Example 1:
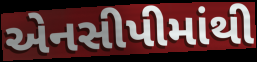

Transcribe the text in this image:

એનસીપીમાંથી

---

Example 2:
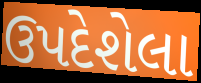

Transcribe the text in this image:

ઉપદેશેલા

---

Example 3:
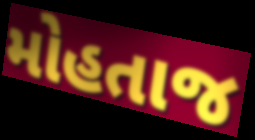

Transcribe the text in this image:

મોહતાજ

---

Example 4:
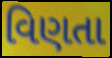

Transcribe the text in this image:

વિણતા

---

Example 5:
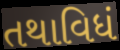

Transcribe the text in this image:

તથાવિધં